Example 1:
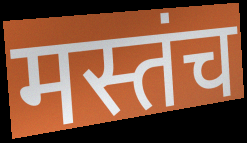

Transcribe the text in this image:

मस्तंच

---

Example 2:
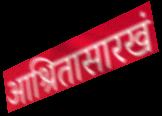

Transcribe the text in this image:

आश्रितासारखं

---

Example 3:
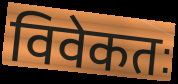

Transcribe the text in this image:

विवेकतः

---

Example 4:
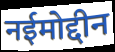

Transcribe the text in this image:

नईमोद्दीन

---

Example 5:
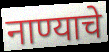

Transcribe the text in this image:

नाण्याचे